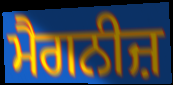
ਮੈਗਨੀਜ਼